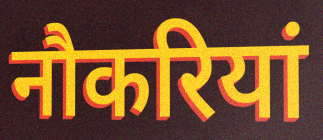
नौकरियां